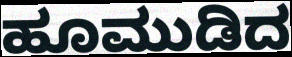
ಹೂಮುಡಿದ